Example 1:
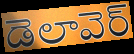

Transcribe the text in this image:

డెలావెర్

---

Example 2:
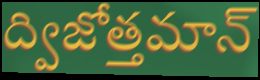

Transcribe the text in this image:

ద్విజోత్తమాన్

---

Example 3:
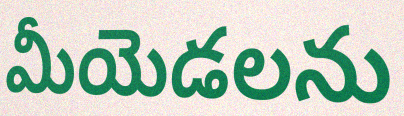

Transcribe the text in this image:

మీయెడలను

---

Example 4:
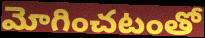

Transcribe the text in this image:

మోగించటంతో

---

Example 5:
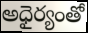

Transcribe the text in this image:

అధైర్యంతో